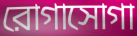
রোগাসোগা